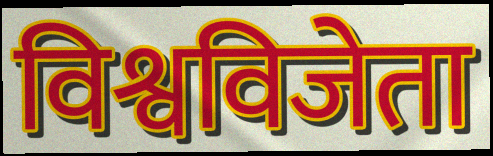
विश्वविजेता